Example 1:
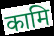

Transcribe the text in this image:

कामि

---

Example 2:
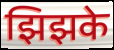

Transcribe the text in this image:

झिझके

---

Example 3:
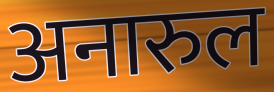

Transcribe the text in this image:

अनारुल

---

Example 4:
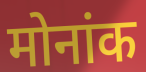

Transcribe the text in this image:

मोनांक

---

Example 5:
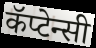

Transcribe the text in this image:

कॅप्टेन्सी